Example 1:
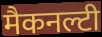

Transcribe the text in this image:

मैकनल्टी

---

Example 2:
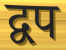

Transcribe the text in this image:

द्वप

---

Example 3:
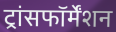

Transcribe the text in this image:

ट्रांसफॉर्मेंशन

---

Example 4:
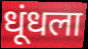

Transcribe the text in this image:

धूंधला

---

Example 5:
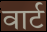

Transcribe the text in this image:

वार्ट